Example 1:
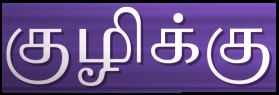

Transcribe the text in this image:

குழிக்கு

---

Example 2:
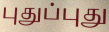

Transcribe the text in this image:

புதுப்புது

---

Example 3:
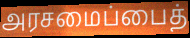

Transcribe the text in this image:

அரசமைப்பைத்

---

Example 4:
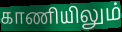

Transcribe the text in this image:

காணியிலும்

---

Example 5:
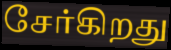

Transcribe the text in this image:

சேர்கிறது